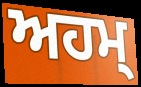
ਅਹਮ੍